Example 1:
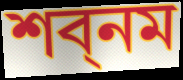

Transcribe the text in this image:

শব্নম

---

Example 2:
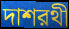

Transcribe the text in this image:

দাশরথী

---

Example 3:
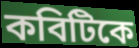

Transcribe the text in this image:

কবিটিকে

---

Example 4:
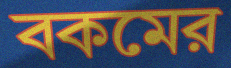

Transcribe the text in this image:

বকমের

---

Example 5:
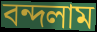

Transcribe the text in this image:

বন্দলাম